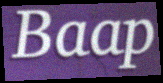
Baap